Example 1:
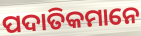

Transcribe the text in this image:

ପଦାତିକମାନେ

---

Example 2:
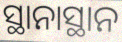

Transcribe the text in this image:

ସ୍ଥାନାସ୍ଥାନ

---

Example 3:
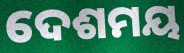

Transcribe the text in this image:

ଦେଶମୟ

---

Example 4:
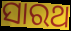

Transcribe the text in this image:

ସାରଥ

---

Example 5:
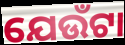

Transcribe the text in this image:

ଯେଉଁଟା